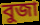
বুজা